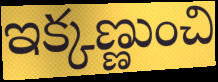
ఇక్కణ్ణుంచి